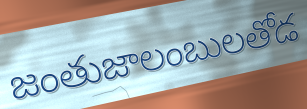
జంతుజాలంబులతోడ